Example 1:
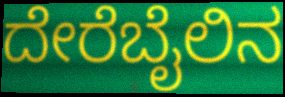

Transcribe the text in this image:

ದೇರೆಬೈಲಿನ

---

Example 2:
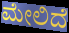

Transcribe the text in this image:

ಮೇಲಿದೆ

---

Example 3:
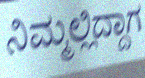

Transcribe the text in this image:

ನಿಮ್ಮಲ್ಲಿದ್ದಾಗ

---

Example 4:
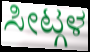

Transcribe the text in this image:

ಸೀಟ್ಗಳ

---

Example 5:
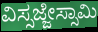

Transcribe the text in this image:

ವಿಸ್ಸಜ್ಜೇಸ್ಸಾಮಿ